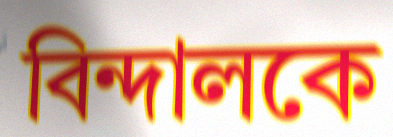
বিন্দালকে